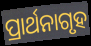
ପ୍ରାର୍ଥନାଗୃହ